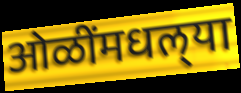
ओळींमधल्या